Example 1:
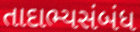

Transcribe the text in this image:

તાદાભ્યસંબંધ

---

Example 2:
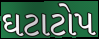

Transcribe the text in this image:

ઘટાટોપ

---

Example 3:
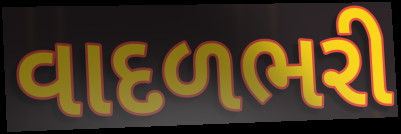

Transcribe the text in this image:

વાદળભરી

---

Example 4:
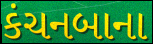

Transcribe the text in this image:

કંચનબાના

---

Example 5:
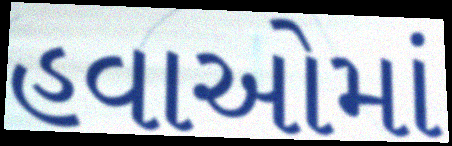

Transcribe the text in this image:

હવાઓમાં